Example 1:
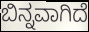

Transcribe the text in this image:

ಬಿನ್ನವಾಗಿದೆ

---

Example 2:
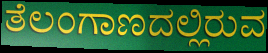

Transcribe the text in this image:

ತೆಲಂಗಾಣದಲ್ಲಿರುವ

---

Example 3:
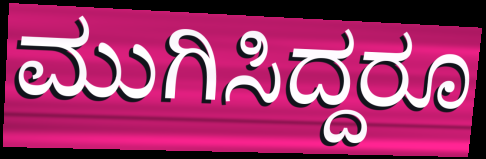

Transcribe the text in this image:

ಮುಗಿಸಿದ್ದರೂ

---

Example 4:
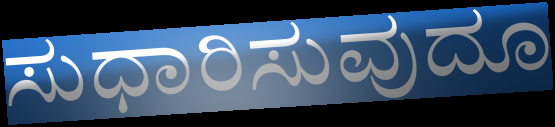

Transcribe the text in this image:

ಸುಧಾರಿಸುವುದೂ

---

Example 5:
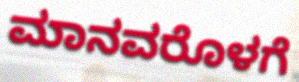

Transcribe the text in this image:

ಮಾನವರೊಳಗೆ